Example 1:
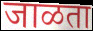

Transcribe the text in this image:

जाळता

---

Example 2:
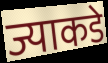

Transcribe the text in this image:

ज्याकडे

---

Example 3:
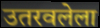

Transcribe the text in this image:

उतरवलेला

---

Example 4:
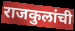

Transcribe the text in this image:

राजकुलांची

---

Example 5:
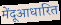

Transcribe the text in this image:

मेंदूआधारित